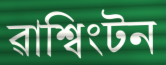
ৱাশ্বিংটন